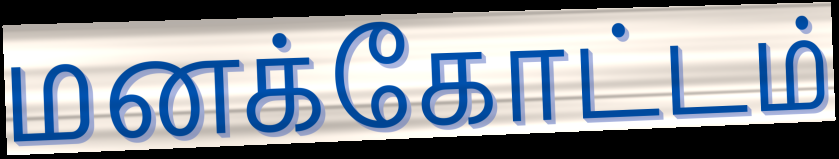
மனக்கோட்டம்